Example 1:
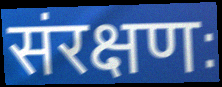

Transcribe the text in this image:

संरक्षणः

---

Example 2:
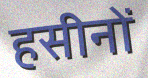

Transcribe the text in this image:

हसीनों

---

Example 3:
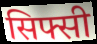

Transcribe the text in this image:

सिफ्सी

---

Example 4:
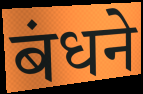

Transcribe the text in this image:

बंधने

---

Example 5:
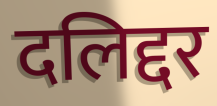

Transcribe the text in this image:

दलिद्दर